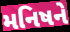
મનિષને